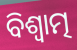
ବିଶ୍ୱାତ୍ମ